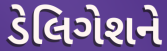
ડેલિગેશને